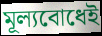
মূল্যবোধেই